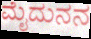
ಮೈದುನನ